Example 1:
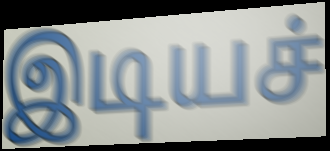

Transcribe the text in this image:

இடியச்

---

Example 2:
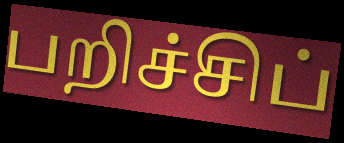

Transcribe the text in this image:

பறிச்சிப்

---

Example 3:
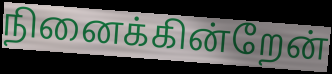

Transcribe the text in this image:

நினைக்கின்றேன்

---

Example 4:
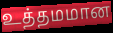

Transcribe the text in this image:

உத்தமமான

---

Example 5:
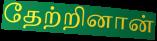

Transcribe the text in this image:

தேற்றினான்